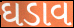
ઘડાવ